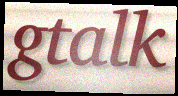
gtalk